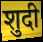
शुदी